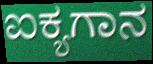
ಐಕ್ಯಗಾನ